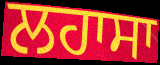
ਲਹਾਸਾ